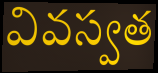
వివస్వత